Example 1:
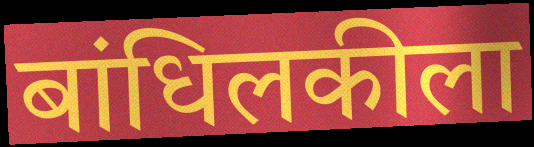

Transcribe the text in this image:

बांधिलकीला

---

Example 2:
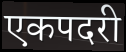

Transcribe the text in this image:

एकपदरी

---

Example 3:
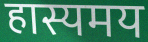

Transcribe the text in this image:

हास्यमय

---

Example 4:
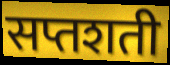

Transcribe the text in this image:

सप्तशती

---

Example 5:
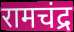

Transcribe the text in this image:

रामचंद्र